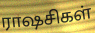
ராஷசிகள்